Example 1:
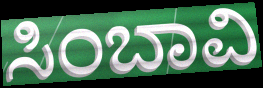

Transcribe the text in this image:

ಸಿಂಬಾವಿ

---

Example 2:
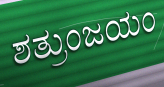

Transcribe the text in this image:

ಶತ್ರುಂಜಯಂ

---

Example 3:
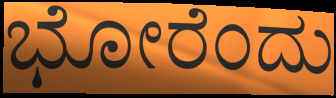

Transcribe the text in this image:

ಭೋರೆಂದು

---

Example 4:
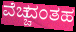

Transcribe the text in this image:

ವೆಚ್ಚದಂತಹ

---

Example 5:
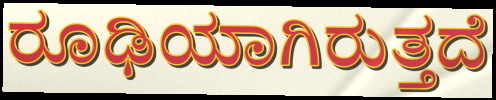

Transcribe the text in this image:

ರೂಢಿಯಾಗಿರುತ್ತದೆ